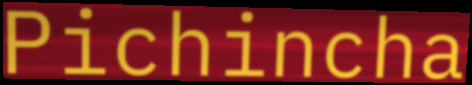
Pichincha